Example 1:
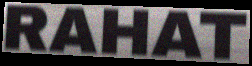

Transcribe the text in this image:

RAHAT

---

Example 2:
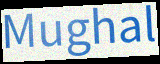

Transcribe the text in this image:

Mughal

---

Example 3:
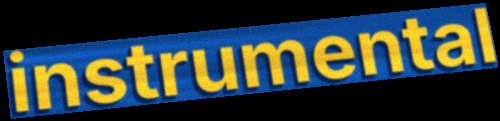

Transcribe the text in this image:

instrumental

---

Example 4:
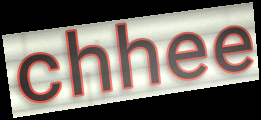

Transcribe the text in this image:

chhee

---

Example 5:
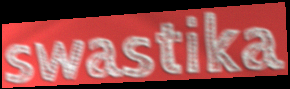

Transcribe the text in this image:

swastika